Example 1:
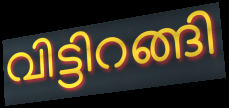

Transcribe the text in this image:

വിട്ടിറങ്ങി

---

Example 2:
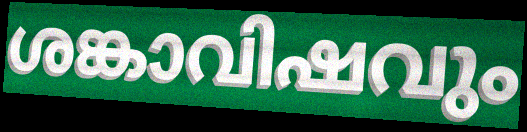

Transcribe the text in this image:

ശങ്കാവിഷവും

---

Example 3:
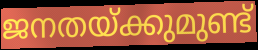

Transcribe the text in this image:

ജനതയ്ക്കുമുണ്ട്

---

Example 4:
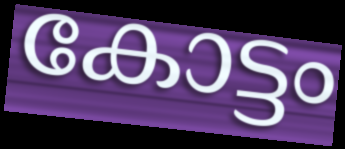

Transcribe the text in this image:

കോട്ടം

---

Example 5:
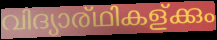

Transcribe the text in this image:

വിദ്യാര്ഥികള്ക്കും